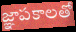
జ్ఞాపకాలతో